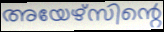
അയേഴ്സിന്റെ